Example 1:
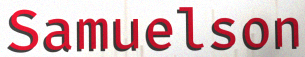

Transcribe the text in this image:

Samuelson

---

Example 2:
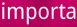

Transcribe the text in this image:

importa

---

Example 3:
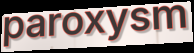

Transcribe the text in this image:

paroxysm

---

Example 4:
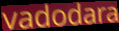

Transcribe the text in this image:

vadodara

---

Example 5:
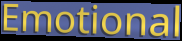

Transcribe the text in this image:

Emotional